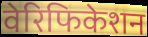
वेरिफिकेशन